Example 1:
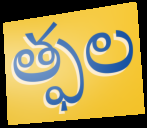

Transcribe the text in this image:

త్ఫల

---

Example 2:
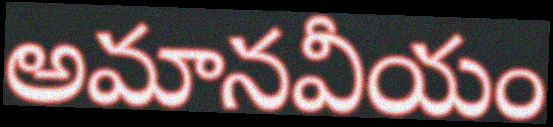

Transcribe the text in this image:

అమానవీయం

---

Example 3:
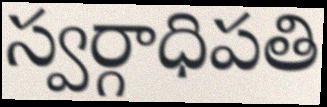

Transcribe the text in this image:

స్వర్గాధిపతి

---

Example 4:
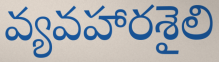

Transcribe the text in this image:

వ్యవహారశైలి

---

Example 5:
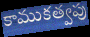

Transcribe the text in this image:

కాముకత్వపు